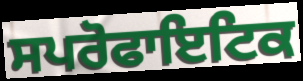
ਸਪਰੋਫਾਇਟਿਕ